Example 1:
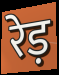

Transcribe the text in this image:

रेड़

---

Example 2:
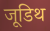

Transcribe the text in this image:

जूडिथ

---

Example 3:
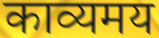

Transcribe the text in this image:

काव्यमय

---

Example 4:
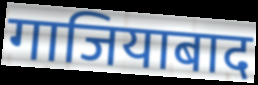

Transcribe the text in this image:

गाजियाबाद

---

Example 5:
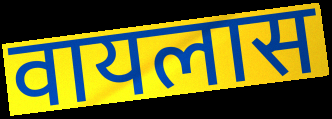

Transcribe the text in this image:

वायलास